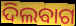
ଦିଲବାଗ